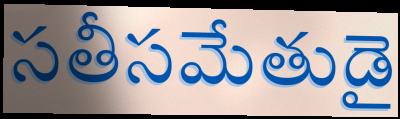
సతీసమేతుడై